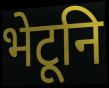
भेटूनि